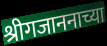
श्रीगजाननाच्या